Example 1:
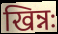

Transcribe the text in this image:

खिन्नः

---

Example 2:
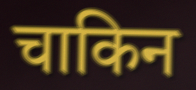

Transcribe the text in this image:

चाकिन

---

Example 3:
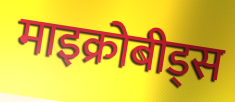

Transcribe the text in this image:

माइक्रोबीड्स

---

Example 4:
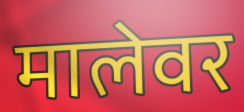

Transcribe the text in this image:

मालेवर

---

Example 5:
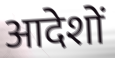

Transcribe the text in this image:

आदेशों